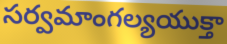
సర్వమాంగల్యయుక్తా